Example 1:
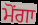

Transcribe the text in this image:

ਮੋਂਗਾ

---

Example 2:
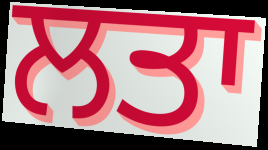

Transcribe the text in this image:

ਲਤਾ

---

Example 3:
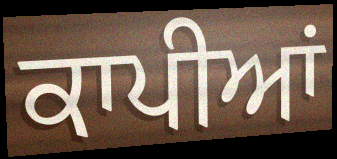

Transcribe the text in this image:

ਕਾਪੀਆਂ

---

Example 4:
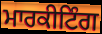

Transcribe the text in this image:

ਮਾਰਕੀਟਿੰਗ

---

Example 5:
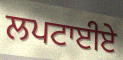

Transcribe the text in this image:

ਲਪਟਾਈਏ